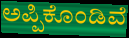
ಅಪ್ಪಿಕೊಂಡಿವೆ